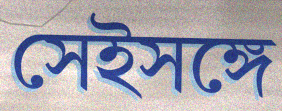
সেইসঙ্গে